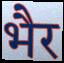
भैर